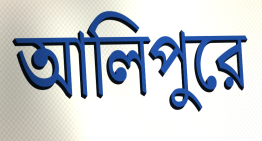
আলিপুরে